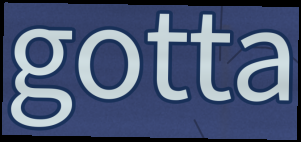
gotta